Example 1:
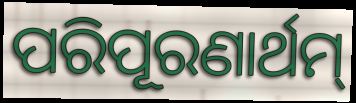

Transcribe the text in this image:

ପରିପୂରଣାର୍ଥମ୍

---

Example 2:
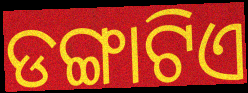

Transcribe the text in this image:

ଡଙ୍ଗାଟିଏ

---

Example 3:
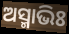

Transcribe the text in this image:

ଅସ୍ମାଭିଃ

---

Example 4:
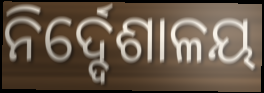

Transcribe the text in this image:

ନିର୍ଦ୍ଦେଶାଳୟ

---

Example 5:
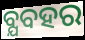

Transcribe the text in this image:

ବ୍ଯବହର